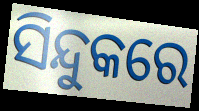
ସିନ୍ଦୁକରେ